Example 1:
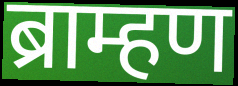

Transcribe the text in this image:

ब्राम्हण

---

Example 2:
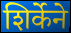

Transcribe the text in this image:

शिर्केने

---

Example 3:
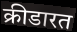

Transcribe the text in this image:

क्रीडारत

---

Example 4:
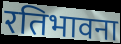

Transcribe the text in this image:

रतिभावना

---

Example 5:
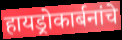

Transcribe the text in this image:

हायड्रोकार्बनांचे